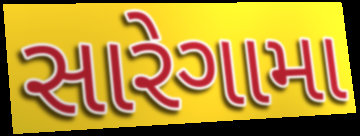
સારેગામા